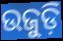
ଉଜୁଡ଼ି